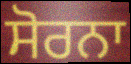
ਸੋਰਨਾ